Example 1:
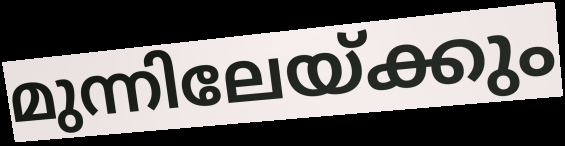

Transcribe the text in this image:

മുന്നിലേയ്ക്കും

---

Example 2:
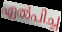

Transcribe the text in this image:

ഏൽപിച്ച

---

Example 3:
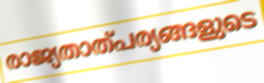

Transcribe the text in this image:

രാജ്യതാത്പര്യങ്ങളുടെ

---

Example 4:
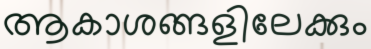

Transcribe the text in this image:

ആകാശങ്ങളിലേക്കും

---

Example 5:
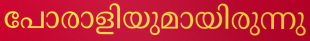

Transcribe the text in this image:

പോരാളിയുമായിരുന്നു